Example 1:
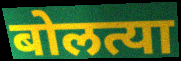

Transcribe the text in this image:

बोलत्या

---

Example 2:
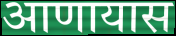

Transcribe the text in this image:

आणायास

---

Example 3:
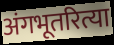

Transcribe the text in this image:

अंगभूतरित्या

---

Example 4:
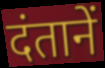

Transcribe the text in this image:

दंतानें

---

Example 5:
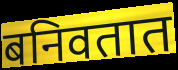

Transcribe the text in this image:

बनिवतात